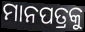
ମାନପତ୍ରକୁ